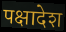
पक्षादेश